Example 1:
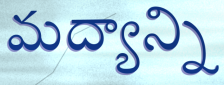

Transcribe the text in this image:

మద్యాన్ని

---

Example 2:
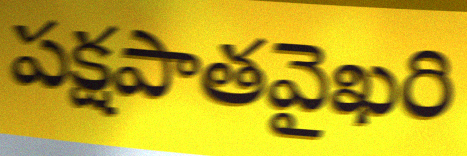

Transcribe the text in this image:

పక్షపాతవైఖరి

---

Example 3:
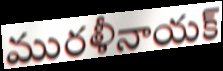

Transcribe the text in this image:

మురళీనాయక్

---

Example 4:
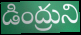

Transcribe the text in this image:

డింద్రుని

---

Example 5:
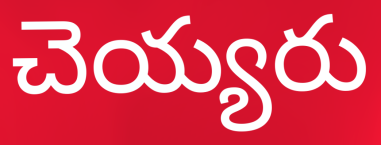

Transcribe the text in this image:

చెయ్యరు